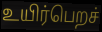
உயிர்பெறச்